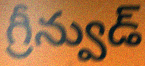
గ్రీన్వుడ్